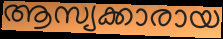
ആസ്യക്കാരായ